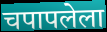
चपापलेला